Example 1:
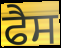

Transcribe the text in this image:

ਫੈਸ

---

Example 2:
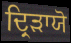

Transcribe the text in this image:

ਦ੍ਰਿੜਾਯੋ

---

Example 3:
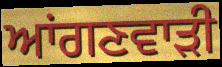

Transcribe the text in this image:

ਆਂਗਣਵਾੜੀ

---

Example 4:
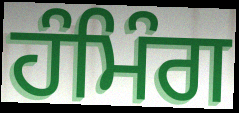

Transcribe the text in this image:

ਹੰਮਿੰਗ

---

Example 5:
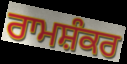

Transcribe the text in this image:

ਰਾਮਸ਼ੰਕਰ